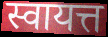
स्वायत्त